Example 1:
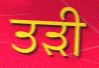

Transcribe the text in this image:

ਤੜੀ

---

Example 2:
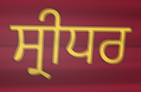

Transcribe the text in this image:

ਸ੍ਰੀਧਰ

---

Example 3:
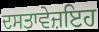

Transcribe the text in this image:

ਦਸਤਾਵੇਜ਼ਇਹ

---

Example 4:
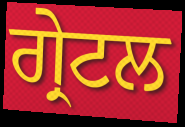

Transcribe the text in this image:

ਗ੍ਰੇਟਲ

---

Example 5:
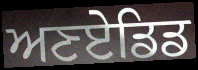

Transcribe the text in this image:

ਅਣਏਡਿਡ